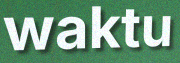
waktu